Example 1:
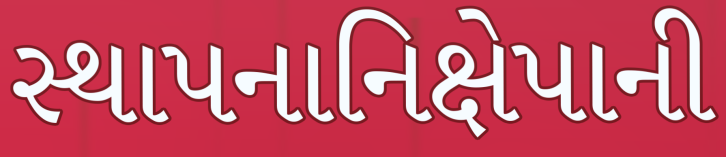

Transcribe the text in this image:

સ્થાપનાનિક્ષેપાની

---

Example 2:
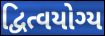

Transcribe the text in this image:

દ્વિત્વયોગ્ય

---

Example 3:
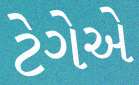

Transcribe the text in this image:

ટેગેએ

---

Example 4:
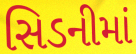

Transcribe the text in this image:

સિડનીમાં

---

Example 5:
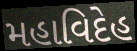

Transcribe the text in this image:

મહાવિદેહ